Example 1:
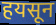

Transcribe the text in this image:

हयसून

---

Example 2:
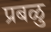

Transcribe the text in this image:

प्रबळु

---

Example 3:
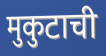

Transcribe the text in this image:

मुकुटाची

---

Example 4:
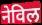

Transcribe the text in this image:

नेविल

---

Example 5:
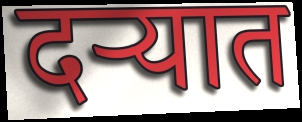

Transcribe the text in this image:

दऱ्यात